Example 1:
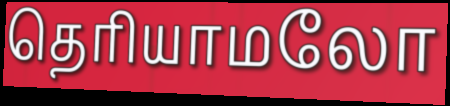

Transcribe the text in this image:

தெரியாமலோ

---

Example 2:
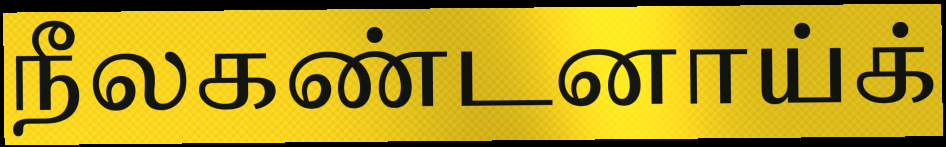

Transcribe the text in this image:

நீலகண்டனாய்க்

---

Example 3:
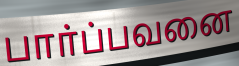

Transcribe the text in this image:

பார்ப்பவனை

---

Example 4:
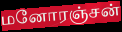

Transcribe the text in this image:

மனோரஞ்சன்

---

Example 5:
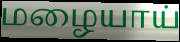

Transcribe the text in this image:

மழையாய்